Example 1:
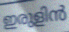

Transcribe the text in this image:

ഇരുളിൻ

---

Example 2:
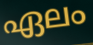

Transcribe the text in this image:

ഏലം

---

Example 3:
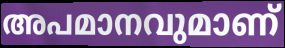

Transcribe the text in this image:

അപമാനവുമാണ്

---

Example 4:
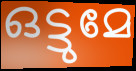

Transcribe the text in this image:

ഒട്ടുമേ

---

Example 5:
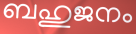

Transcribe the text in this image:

ബഹുജനം